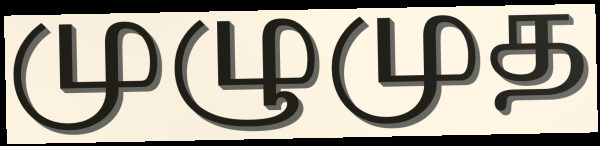
முழுமுத